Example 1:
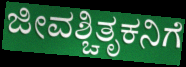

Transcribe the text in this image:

ಜೀವಶ್ಚಿತೃಕನಿಗೆ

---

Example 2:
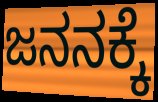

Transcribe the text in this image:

ಜನನಕ್ಕೆ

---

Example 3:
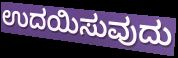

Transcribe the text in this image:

ಉದಯಿಸುವುದು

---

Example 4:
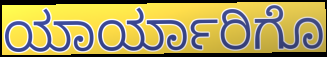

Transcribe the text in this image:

ಯಾರ್ಯಾರಿಗೊ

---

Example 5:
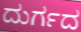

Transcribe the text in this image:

ದುರ್ಗದ